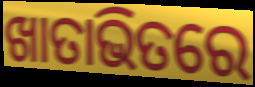
ଖାତାଭିତରେ